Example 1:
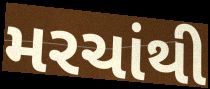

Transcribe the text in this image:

મરચાંથી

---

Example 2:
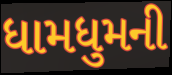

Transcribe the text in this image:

ધામધુમની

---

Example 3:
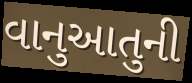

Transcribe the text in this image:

વાનુઆતુની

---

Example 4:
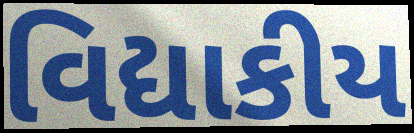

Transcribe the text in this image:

વિદ્યાકીય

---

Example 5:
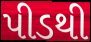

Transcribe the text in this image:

પીડથી